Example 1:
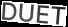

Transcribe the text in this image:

DUET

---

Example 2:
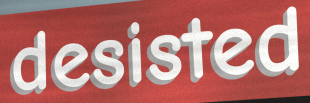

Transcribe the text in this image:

desisted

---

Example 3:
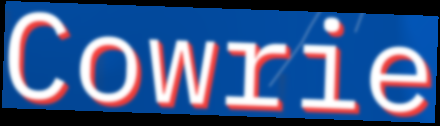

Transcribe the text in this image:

Cowrie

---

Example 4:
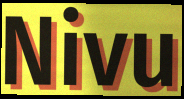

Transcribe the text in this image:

Nivu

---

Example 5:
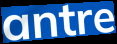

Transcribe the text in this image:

antre